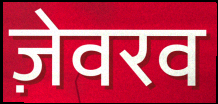
ज़ेवरव